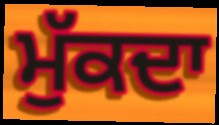
ਮੁੱਕਦਾ